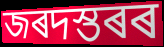
জৰদস্তৰৰ